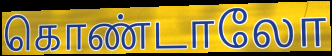
கொண்டாலோ